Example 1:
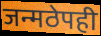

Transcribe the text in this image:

जन्मठेपही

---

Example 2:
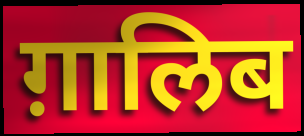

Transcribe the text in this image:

ग़ालिब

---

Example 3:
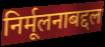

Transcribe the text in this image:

निर्मूलनाबद्दल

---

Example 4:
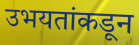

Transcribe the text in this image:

उभयतांकडून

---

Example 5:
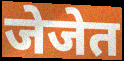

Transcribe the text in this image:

जेजेत